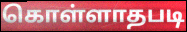
கொள்ளாதபடி